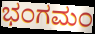
ಭಂಗಮಂ